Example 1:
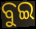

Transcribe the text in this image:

ବୁଇ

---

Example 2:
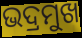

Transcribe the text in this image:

ଭଦ୍ରମୁଖ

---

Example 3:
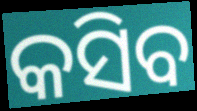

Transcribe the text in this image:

କସିବ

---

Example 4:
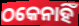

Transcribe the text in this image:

ଠକେନାହିଁ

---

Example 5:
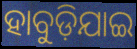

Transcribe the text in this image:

ହାବୁଡ଼ିଯାଇ